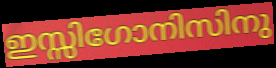
ഇസ്സിഗോനിസിനു